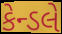
કેન્ડલે